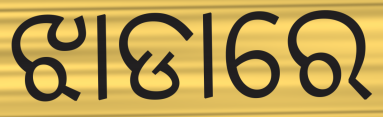
ଝାଡାରେ